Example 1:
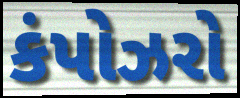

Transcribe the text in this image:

કંપોઝરો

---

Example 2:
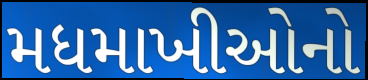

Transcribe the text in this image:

મધમાખીઓનો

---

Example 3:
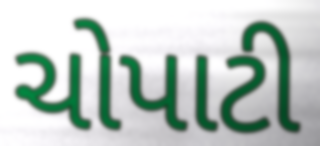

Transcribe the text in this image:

ચોપાટી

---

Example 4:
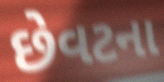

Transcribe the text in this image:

છેવટના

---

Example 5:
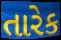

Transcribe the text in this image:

તારેક